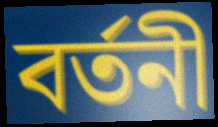
বৰ্তনী